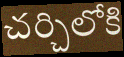
చర్చిలోకి